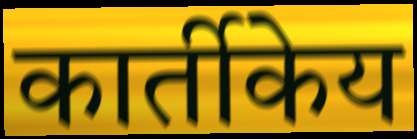
कार्तीकेय